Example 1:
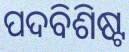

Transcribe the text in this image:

ପଦବିଶିଷ୍ଟ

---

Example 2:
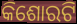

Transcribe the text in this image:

କିଶୋରଟି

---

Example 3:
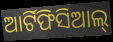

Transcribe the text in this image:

ଆର୍ଟିଫିସିଆଲ୍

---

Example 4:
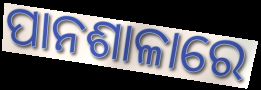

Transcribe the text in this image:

ପାନଶାଳାରେ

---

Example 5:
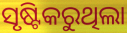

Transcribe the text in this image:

ସୃଷ୍ଟିକରୁଥିଲା